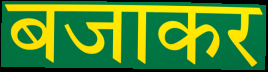
बजाकर